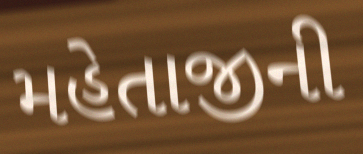
મહેતાજીની